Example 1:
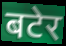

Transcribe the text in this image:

बटेर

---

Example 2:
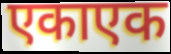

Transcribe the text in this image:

एकाएक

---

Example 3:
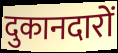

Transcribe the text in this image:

दुकानदारों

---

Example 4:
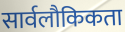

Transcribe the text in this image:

सार्वलौकिकता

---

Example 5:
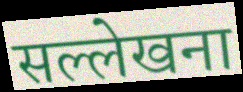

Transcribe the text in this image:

सल्लेखना